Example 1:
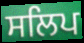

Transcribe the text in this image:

ਸਲਿਪ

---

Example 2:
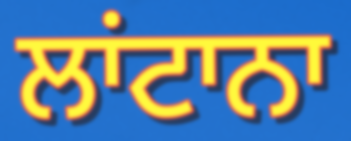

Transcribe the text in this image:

ਲਾਂਟਾਨਾ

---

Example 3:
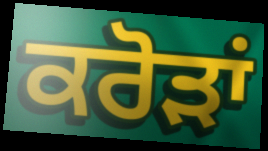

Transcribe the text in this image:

ਕਰੋਡ਼ਾਂ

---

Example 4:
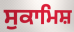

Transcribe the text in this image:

ਸੁਕਾਮਿਸ਼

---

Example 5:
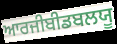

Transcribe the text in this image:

ਆਰਜੀਬੀਡਬਲਯੂ